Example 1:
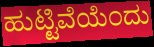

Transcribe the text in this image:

ಹುಟ್ಟಿವೆಯೆಂದು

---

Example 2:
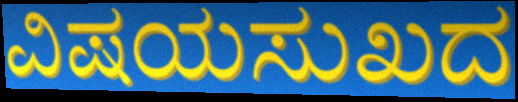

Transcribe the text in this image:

ವಿಷಯಸುಖದ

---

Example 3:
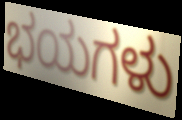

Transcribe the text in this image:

ಭಯಗಳು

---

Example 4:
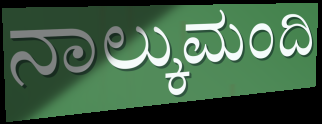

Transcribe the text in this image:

ನಾಲ್ಕುಮಂದಿ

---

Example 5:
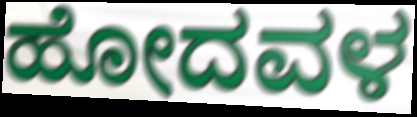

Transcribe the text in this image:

ಹೋದವಳ